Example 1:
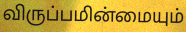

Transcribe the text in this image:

விருப்பமின்மையும்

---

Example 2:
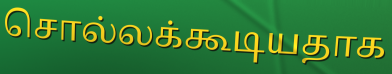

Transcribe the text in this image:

சொல்லக்கூடியதாக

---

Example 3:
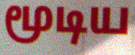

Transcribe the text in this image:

மூடிய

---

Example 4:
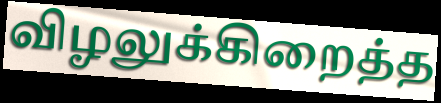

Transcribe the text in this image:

விழலுக்கிறைத்த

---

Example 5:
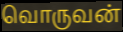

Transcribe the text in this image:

வொருவன்